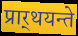
प्रार्थयन्ते